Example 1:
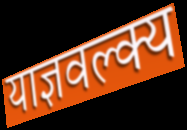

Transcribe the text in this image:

याज्ञवल्क्य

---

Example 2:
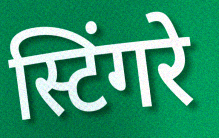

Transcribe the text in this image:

स्टिंगरे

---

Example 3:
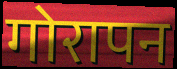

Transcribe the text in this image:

गोरापन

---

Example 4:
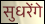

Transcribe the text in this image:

सुधरेंगे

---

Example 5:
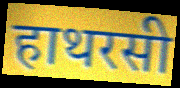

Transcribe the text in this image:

हाथरसी